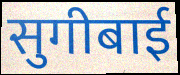
सुगीबाई